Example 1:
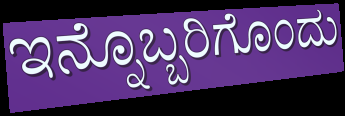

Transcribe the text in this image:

ಇನ್ನೊಬ್ಬರಿಗೊಂದು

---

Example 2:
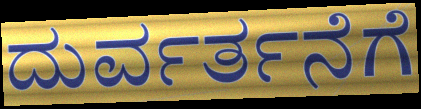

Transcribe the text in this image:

ದುರ್ವರ್ತನೆಗೆ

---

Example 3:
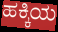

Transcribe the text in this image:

ಹಕ್ಕಿಯ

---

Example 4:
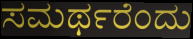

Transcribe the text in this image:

ಸಮರ್ಥರೆಂದು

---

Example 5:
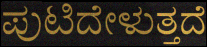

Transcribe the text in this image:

ಪುಟಿದೇಳುತ್ತದೆ